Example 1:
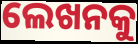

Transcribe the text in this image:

ଲେଖନକୁ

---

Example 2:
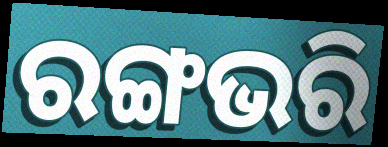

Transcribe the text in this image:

ରଙ୍ଗଭରି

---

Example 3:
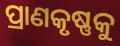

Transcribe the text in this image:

ପ୍ରାଣକୃଷ୍ଣକୁ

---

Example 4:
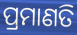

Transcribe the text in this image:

ପ୍ରମାଣତି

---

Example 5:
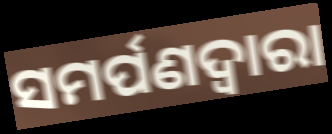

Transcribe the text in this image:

ସମର୍ପଣଦ୍ୱାରା